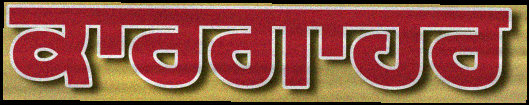
ਕਾਰਗਾਹਰ